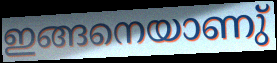
ഇങ്ങനെയാണു്